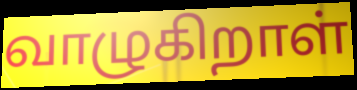
வாழுகிறாள்